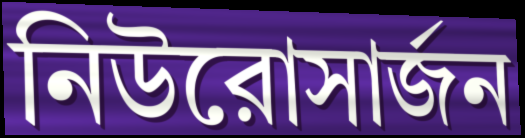
নিউরোসার্জন